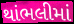
થાંભલીમાં